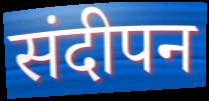
संदीपन